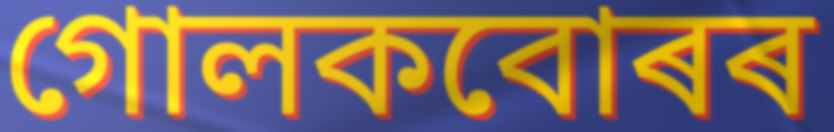
গোলকবোৰৰ